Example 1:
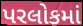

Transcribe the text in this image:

પરલોકમાં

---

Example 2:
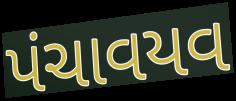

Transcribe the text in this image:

પંચાવયવ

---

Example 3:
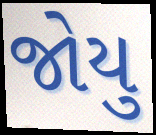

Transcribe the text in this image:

જોયુ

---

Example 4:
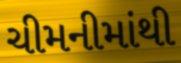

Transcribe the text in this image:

ચીમનીમાંથી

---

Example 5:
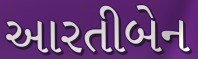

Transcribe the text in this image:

આરતીબેન